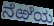
ನೆಱೆಯ